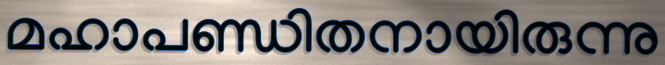
മഹാപണ്ഡിതനായിരുന്നു